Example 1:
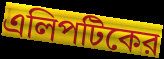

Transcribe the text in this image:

এলিপটিকের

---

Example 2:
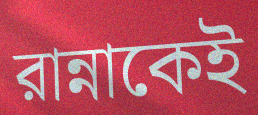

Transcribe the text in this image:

রান্নাকেই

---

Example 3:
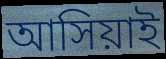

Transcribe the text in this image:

আসিয়াই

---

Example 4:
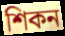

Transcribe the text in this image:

শিকন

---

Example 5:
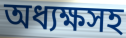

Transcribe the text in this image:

অধ্যক্ষসহ